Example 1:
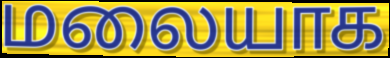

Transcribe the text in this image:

மலையாக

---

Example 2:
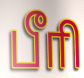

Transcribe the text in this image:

பீரி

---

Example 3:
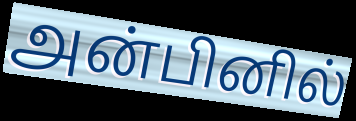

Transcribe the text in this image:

அன்பினில்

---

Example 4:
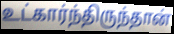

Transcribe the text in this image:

உட்கார்ந்திருந்தான்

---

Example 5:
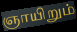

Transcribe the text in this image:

ஞாயிறும்